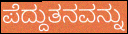
ಪೆದ್ದುತನವನ್ನು